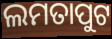
ଲମତାପୁଟ